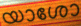
യാശോ